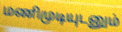
மணிமுடியுடனும்